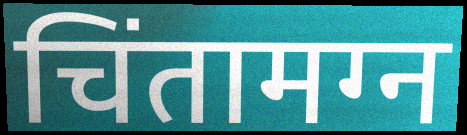
चिंतामग्न